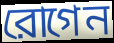
রোগেন